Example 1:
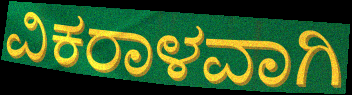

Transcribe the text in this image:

ವಿಕರಾಳವಾಗಿ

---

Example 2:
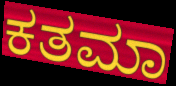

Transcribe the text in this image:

ಕತಮಾ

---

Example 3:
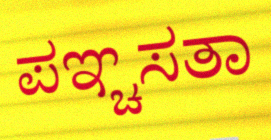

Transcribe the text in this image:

ಪಞ್ಚಸತಾ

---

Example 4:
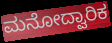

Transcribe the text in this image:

ಮನೋದ್ವಾರಿಕ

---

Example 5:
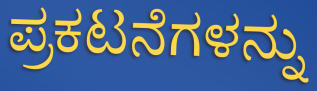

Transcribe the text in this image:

ಪ್ರಕಟನೆಗಳನ್ನು